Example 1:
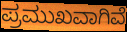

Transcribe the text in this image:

ಪ್ರಮುಖವಾಗಿವೆ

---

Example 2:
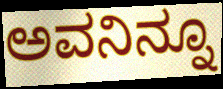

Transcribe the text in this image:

ಅವನಿನ್ನೂ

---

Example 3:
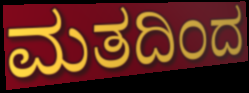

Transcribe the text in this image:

ಮತದಿಂದ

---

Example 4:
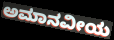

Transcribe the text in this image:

ಅಮಾನವೀಯ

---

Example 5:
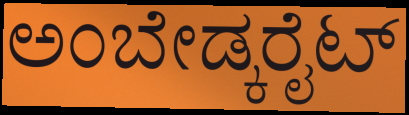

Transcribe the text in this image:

ಅಂಬೇಡ್ಕರೈಟ್